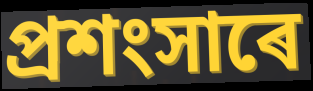
প্ৰশংসাৰে